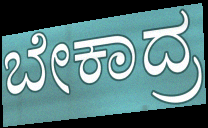
ಬೇಕಾದ್ರ